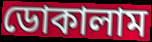
ডোকালাম